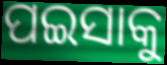
ପଇସାକୁ